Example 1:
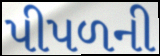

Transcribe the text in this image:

પીપળની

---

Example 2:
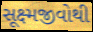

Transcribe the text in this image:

સૂક્ષ્મજીવોથી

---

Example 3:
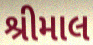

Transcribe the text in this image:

શ્રીમાલ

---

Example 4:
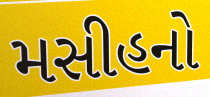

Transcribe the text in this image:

મસીહનો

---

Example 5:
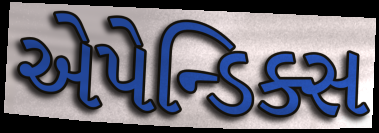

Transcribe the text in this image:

એપેન્ડિક્સ